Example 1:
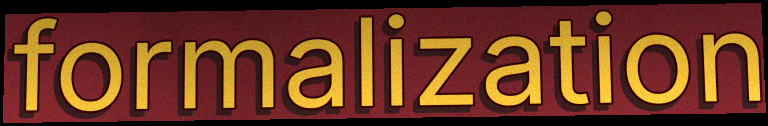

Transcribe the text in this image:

formalization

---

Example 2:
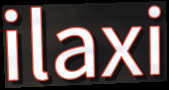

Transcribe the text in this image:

ilaxi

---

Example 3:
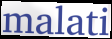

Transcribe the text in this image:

malati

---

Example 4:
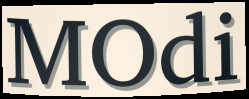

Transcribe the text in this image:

MOdi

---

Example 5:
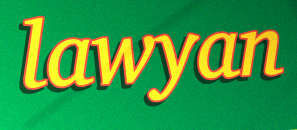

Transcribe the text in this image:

lawyan